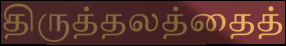
திருத்தலத்தைத்